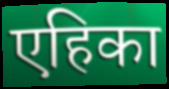
एहिका